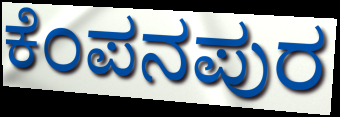
ಕೆಂಪನಪುರ